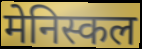
मेनिस्कल